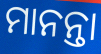
ମାନନ୍ତା